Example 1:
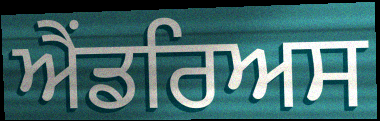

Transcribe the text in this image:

ਐਂਡਰਿਅਸ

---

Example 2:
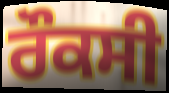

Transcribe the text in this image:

ਰੌਕਸੀ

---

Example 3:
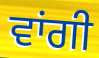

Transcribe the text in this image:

ਵਾਂਗੀ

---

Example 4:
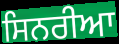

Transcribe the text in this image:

ਸਿਨਰੀਆ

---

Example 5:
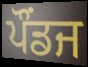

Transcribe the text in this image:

ਪੌਂਡਜ